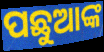
ପଛୁଆଙ୍କ